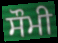
ਸੌਮੀ